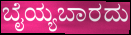
ಬೈಯ್ಯಬಾರದು